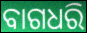
ବାଗଧରି